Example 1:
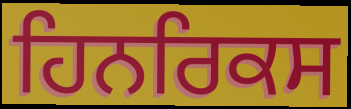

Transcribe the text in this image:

ਹਿਨਰਿਕਸ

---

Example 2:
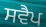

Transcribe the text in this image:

ਸਵੈਪ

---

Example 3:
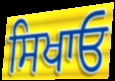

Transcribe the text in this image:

ਸਿਖਾਓ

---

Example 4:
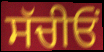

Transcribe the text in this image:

ਸੱਚੀਓਂ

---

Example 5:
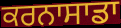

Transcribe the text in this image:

ਕਰਨਾਸਾਡਾ